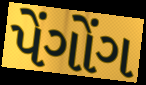
પેંગોંગ